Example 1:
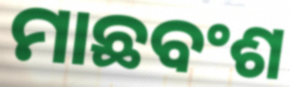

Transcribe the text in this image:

ମାଛବଂଶ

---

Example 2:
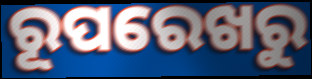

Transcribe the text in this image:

ରୂପରେଖରୁ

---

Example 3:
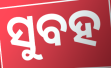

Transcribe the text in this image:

ସୁବହ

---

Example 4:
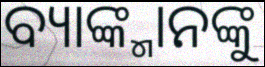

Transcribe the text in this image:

ବ୍ୟାଙ୍କ୍ମାନଙ୍କୁ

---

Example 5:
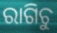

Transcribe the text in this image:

ରାଗିଚୁ